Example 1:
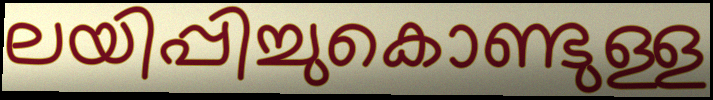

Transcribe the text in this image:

ലയിപ്പിച്ചുകൊണ്ടുള്ള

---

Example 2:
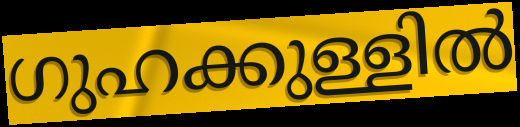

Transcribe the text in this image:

ഗുഹക്കുള്ളിൽ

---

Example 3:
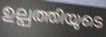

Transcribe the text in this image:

ഉല്പത്തിയുടെ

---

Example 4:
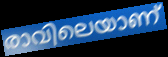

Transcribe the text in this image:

രാവിലെയാണ്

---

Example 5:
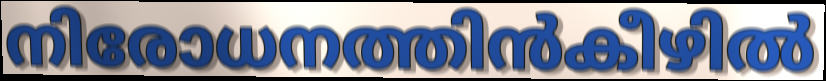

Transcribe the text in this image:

നിരോധനത്തിൻകീഴിൽ